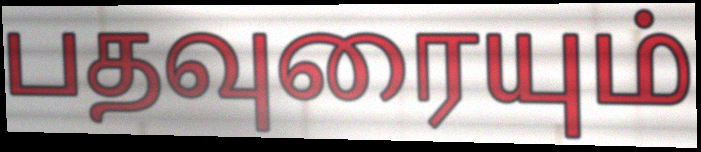
பதவுரையும்